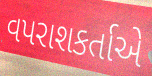
વપરાશકર્તાએ